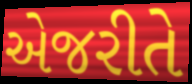
એજરીતે